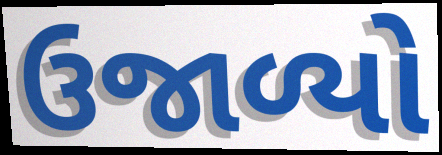
ઉજાળ્યો